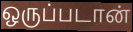
ஒருப்படான்